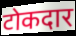
टोकदार